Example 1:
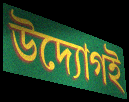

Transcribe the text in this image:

উদ্যোগই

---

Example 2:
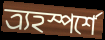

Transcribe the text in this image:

ত্র্যহস্পর্শে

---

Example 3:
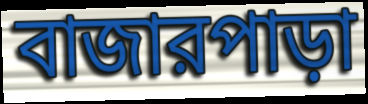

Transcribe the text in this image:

বাজারপাড়া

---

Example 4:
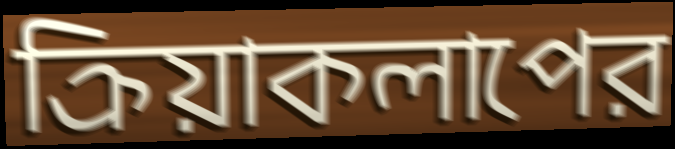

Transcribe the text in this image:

ক্রিয়াকলাপের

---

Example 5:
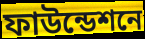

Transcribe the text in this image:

ফাউন্ডেশনে